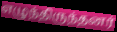
எழுந்திருந்தனர்